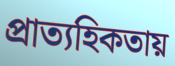
প্রাত্যহিকতায়